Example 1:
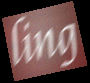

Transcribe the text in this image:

ling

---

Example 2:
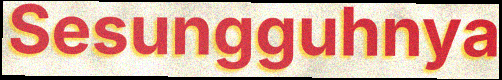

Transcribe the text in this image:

Sesungguhnya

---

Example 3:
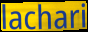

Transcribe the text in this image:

lachari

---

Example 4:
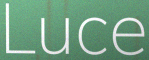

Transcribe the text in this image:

Luce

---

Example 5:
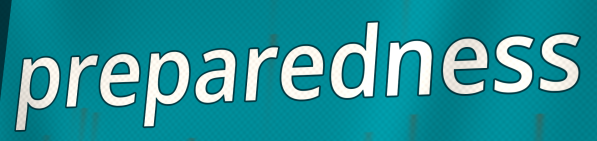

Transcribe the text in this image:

preparedness